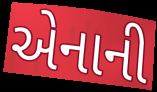
એનાની